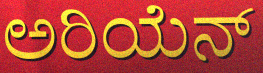
ಅರಿಯೆನ್